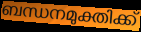
ബന്ധനമുക്തിക്ക്